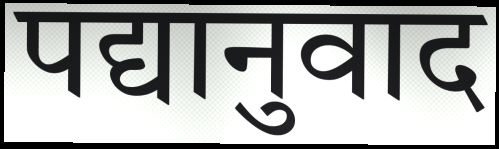
पद्यानुवाद